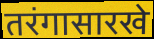
तरंगासारखे